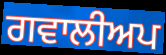
ਗਵਾਲੀਅਪ